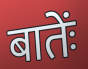
बातेंः